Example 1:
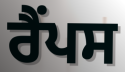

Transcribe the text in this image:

ਰੈਂਪਸ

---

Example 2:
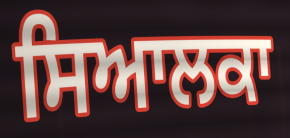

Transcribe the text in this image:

ਸਿਆਲਕਾ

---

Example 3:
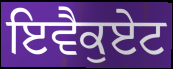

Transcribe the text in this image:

ਇਵੈਕੁਏਟ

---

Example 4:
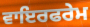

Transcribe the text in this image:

ਵਾਇਰਫਰੇਮ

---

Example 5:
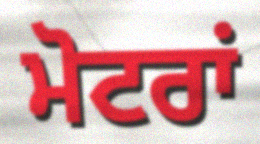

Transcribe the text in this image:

ਮੋਟਰਾਂ